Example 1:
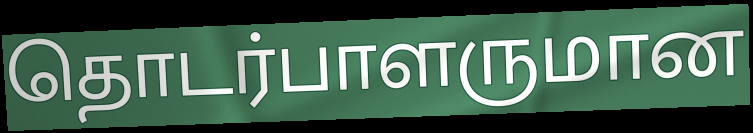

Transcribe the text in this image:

தொடர்பாளருமான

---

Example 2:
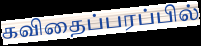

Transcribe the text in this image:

கவிதைப்பரப்பில்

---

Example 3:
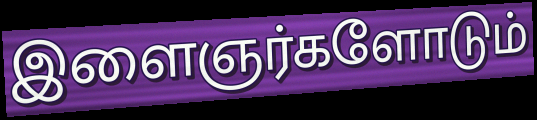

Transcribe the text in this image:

இளைஞர்களோடும்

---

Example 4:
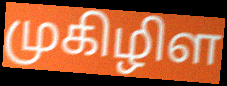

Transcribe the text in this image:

முகிழிள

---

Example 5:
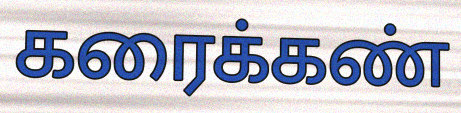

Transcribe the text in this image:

கரைக்கண்